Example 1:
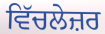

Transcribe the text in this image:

ਵਿੱਚਲੇਜ਼ਰ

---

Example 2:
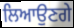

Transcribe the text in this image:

ਲਿਆਉਣਗੇ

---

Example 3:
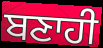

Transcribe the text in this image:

ਬਣਾਹੀ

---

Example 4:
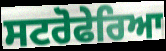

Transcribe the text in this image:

ਸਟਰੋਫੇਰਿਆ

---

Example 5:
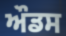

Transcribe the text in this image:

ਔਡਸ